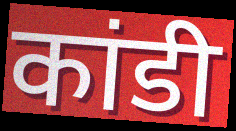
कांडी